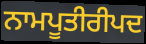
ਨਾਮਪੂਤੀਰੀਪਦ